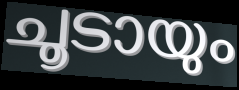
ചൂടായും